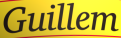
Guillem